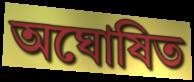
অঘোষিত